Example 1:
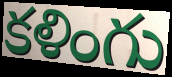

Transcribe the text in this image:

కళింగు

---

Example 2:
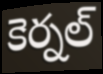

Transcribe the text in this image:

కెర్నల్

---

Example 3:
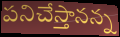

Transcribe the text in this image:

పనిచేస్తానన్న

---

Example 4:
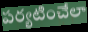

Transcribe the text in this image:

పర్యటించేలా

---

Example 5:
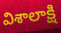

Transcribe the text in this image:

విశాలాక్షి